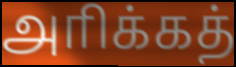
அரிக்கத்